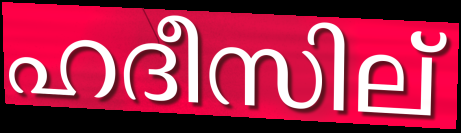
ഹദീസില്